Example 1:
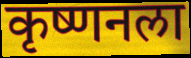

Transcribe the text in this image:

कृष्णनला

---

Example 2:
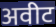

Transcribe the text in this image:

अवीट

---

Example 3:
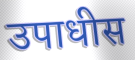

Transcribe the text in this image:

उपाधीस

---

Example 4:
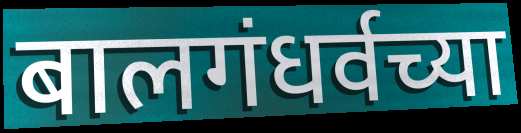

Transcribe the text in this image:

बालगंधर्वच्या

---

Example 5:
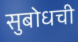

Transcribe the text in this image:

सुबोधची